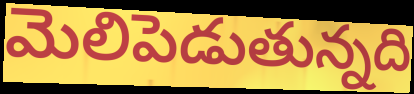
మెలిపెడుతున్నది